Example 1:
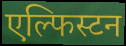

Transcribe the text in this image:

एल्फिस्टन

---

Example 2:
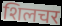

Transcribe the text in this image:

शिलचर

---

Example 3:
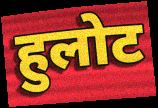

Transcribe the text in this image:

हुलोट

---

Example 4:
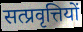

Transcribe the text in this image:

सत्प्रवृत्तियों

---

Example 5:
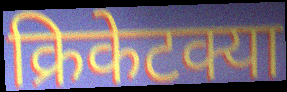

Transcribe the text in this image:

क्रिकेटक्या